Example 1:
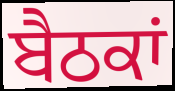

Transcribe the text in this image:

ਬੈਠਕਾਂ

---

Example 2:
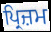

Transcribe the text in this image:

ਪ੍ਰਿਜ਼ਮ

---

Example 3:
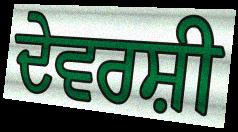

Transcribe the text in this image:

ਦੇਵਰਸ਼ੀ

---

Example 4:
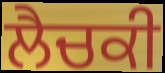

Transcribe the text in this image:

ਲੈਚਕੀ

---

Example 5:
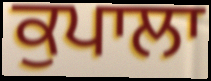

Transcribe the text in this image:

ਕੁਪਾਲਾ